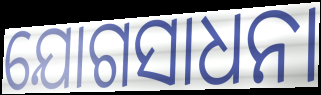
ଯୋଗସାଧନା